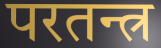
परतन्त्र